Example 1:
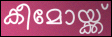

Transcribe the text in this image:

കീമോയ്ക്ക്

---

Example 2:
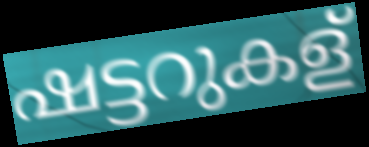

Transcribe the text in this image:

ഷട്ടറുകള്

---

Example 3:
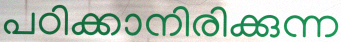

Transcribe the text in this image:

പഠിക്കാനിരിക്കുന്ന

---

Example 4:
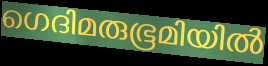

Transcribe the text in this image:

ഗെദിമരുഭൂമിയിൽ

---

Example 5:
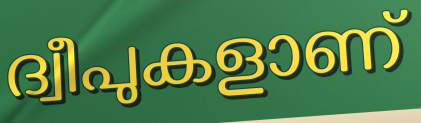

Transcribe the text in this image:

ദ്വീപുകളാണ്